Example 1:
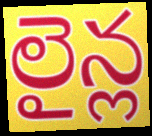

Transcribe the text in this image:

లైన్ల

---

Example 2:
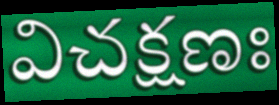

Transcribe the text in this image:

విచక్షణః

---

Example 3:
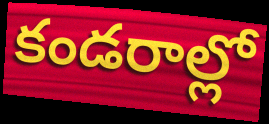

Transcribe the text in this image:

కండరాల్లో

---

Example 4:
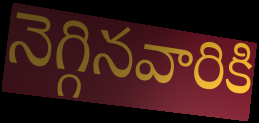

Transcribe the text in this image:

నెగ్గినవారికి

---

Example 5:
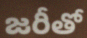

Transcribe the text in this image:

జరీతో